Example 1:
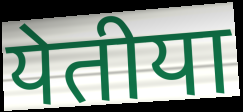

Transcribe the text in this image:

येतीया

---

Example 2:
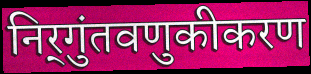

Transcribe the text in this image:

निर्गुंतवणुकीकरण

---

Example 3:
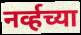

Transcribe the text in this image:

नर्व्हच्या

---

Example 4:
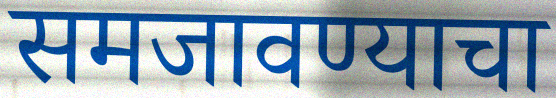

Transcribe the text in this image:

समजावण्याचा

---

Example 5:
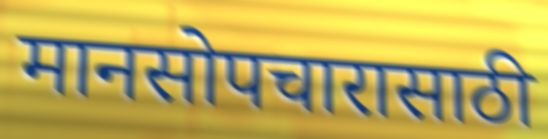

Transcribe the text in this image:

मानसोपचारासाठी